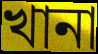
খানা